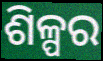
ଶିଳ୍ପର